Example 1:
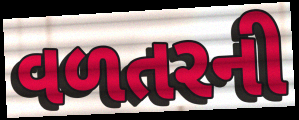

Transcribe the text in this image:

વળતરની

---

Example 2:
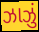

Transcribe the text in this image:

ઝાઝું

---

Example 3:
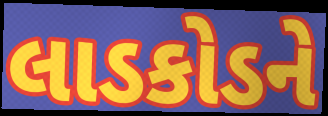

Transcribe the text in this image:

લાડકોડને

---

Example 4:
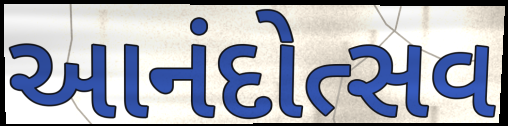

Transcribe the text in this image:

આનંદોત્સવ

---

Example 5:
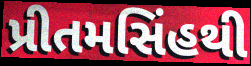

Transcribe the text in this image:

પ્રીતમસિંહથી